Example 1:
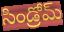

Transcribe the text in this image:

సిండ్రోమ్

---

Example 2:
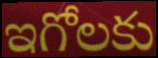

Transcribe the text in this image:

ఇగోలకు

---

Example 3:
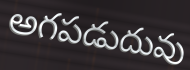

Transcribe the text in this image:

అగపడుదువు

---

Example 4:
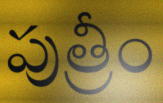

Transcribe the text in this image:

పుత్రీం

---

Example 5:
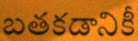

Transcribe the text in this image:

బతకడానికీ